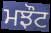
ਮਝੌਟ